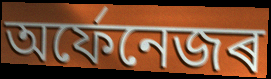
অৰ্ফেনেজৰ